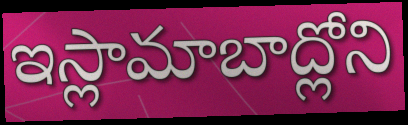
ఇస్లామాబాద్లోని